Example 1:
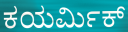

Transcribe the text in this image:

ಕಯರ್ಮಿಕ್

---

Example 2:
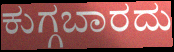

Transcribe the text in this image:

ಕುಗ್ಗಬಾರದು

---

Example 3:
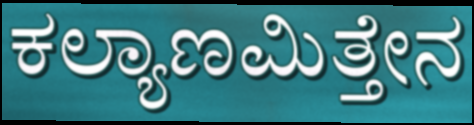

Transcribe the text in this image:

ಕಲ್ಯಾಣಮಿತ್ತೇನ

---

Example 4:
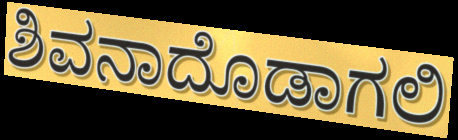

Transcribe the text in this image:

ಶಿವನಾದೊಡಾಗಲಿ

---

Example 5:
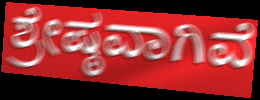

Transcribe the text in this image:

ಶ್ರೇಷ್ಠವಾಗಿವೆ